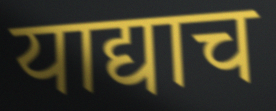
याद्याच